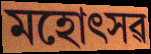
মহোৎসৱ